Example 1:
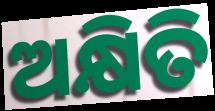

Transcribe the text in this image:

ଅକ୍ଷିତି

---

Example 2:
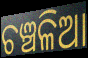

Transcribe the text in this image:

ଚଞ୍ଚଳିଆ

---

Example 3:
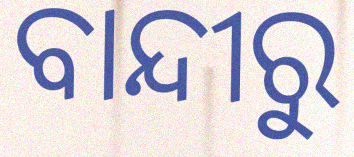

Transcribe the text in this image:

ବାନ୍ଦୀରୁ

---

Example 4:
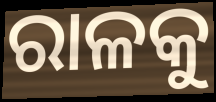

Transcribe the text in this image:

ରାଳକୁ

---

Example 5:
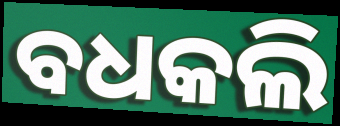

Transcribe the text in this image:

ବଧକଲି